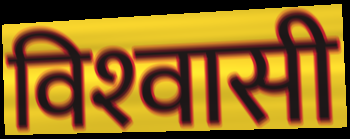
विश्‍वासी